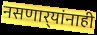
नसणार्‍यांनाही